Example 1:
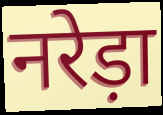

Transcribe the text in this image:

नरेड़ा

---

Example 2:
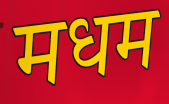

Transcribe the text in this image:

मधम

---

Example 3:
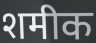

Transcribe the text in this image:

शमीक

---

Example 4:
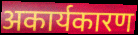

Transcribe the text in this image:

अकार्यकारण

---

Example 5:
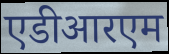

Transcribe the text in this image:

एडीआरएम